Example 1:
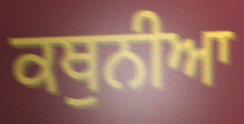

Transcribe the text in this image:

ਕਥੁਨੀਆ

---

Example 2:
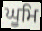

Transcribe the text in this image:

ਘੂਮਿ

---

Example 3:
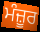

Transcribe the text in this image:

ਮੰਜ਼ੂਰ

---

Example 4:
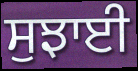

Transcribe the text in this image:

ਸੁਝਾਈ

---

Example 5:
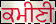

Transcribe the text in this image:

ਕਮੀਣੀ